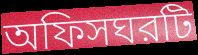
অফিসঘরটি